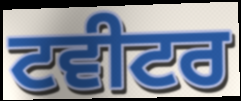
ਟਵੀਟਰ